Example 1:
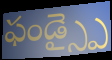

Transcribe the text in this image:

ఫండ్స్పై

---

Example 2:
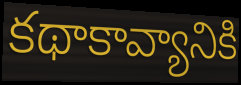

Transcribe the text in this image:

కథాకావ్యానికి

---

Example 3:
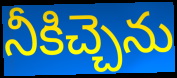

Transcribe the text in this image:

నీకిచ్చెను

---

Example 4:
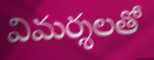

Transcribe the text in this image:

విమర్శలతో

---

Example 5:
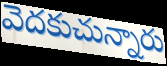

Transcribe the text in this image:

వెదకుచున్నారు